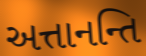
અત્તાનન્તિ